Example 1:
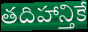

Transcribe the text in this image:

తదిహాన్తికే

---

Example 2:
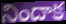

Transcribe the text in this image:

నిందాక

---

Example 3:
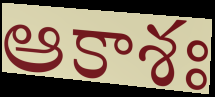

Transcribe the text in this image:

ఆకాశః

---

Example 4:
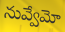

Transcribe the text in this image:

నువ్వేమో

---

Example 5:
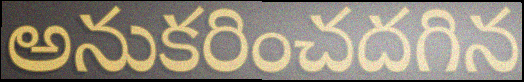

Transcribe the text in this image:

అనుకరించదగిన